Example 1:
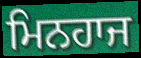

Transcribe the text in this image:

ਮਿਨਹਾਜ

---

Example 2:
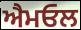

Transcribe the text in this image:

ਐਮਓਲ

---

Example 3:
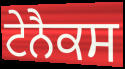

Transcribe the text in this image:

ਟੇਨੈਕਸ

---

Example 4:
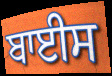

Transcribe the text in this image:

ਬਾਈਸ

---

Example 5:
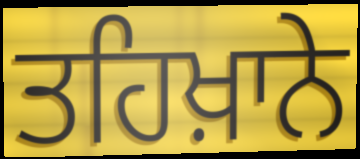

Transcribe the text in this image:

ਤਹਿਖ਼ਾਨੇ